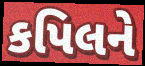
કપિલને